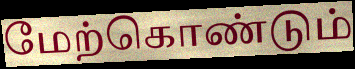
மேற்கொண்டும்